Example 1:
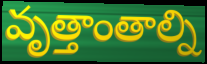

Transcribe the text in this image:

వృత్తాంతాల్ని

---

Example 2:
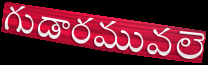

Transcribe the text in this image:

గుడారమువలె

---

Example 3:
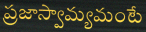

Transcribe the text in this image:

ప్రజాస్వామ్యమంటే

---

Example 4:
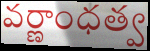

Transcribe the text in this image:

వర్ణాంధత్వ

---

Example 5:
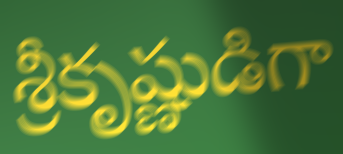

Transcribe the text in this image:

శ్రీకృష్ణుడిగా